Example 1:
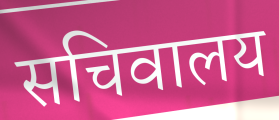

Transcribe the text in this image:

सचिवालय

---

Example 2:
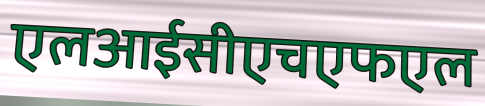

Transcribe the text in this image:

एलआईसीएचएफएल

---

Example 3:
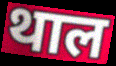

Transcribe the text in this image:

थाल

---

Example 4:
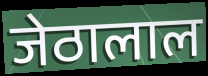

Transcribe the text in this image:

जेठालाल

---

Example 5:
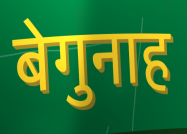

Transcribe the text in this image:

बेगुनाह